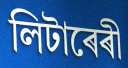
লিটাৰেৰী